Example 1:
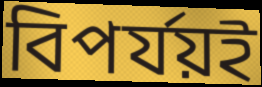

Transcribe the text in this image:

বিপর্যয়ই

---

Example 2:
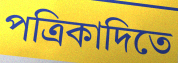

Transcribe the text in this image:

পত্রিকাদিতে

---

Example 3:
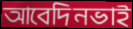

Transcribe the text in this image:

আবেদিনভাই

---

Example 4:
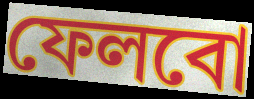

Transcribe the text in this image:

ফেলবো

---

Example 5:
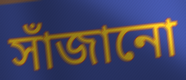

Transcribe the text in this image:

সাঁজানো